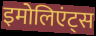
इमोलिएंट्स